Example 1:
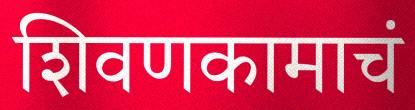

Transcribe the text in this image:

शिवणकामाचं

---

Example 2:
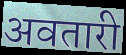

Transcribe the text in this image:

अवतारी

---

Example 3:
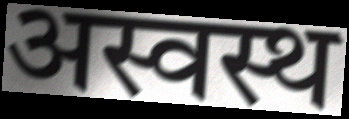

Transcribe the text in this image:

अस्वस्थ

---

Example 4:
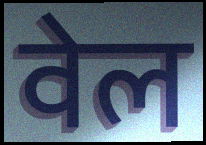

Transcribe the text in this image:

वेल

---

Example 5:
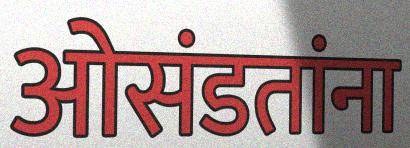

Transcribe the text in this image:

ओसंडतांना